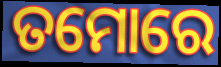
ତମୋରେ